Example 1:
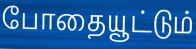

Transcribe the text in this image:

போதையூட்டும்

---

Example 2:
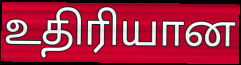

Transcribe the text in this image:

உதிரியான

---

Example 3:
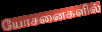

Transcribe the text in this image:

யோசனைகளில்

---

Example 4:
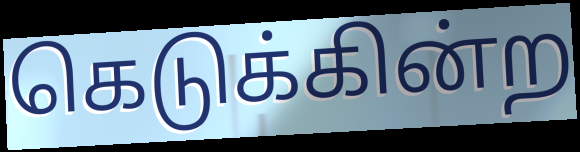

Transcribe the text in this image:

கெடுக்கின்ற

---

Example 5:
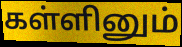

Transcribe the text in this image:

கள்ளினும்